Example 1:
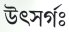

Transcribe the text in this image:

উৎসর্গঃ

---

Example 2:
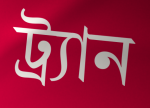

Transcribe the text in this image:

ট্র্যান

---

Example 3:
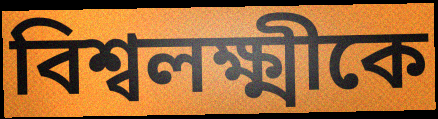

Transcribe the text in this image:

বিশ্বলক্ষ্মীকে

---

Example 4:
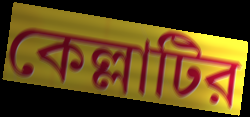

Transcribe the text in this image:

কেল্লাটির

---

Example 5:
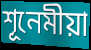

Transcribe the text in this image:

শূনেমীয়া